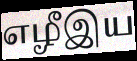
எழீஇய